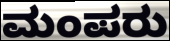
ಮಂಪರು